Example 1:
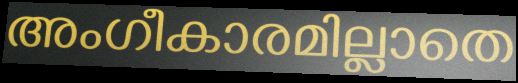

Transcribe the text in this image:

അംഗീകാരമില്ലാതെ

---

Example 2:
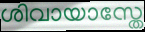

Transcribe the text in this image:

ശിവായാസ്തേ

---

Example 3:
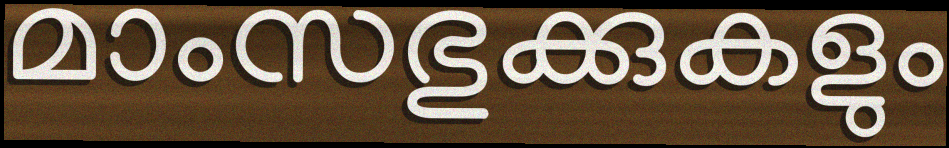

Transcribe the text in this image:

മാംസഭുക്കുകളും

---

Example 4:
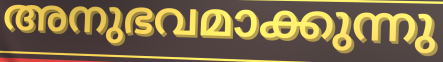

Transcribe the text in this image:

അനുഭവമാക്കുന്നു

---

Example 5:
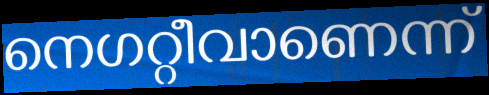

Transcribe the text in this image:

നെഗറ്റീവാണെന്ന്